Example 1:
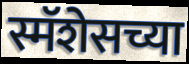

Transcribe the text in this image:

स्मॅशेसच्या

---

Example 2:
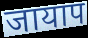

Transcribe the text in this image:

जायाप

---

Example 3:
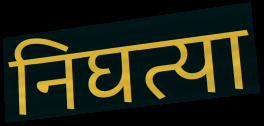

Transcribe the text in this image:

निघत्या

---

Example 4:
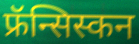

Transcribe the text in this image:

फ्रॅन्सिस्कन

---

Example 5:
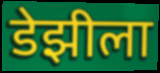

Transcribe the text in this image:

डेझीला